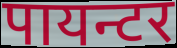
पायन्टर